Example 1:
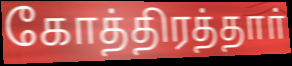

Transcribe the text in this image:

கோத்திரத்தார்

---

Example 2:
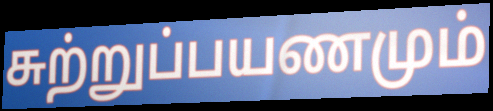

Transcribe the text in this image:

சுற்றுப்பயணமும்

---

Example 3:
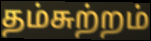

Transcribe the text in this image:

தம்சுற்றம்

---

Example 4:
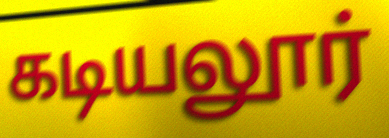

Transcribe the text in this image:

கடியலூர்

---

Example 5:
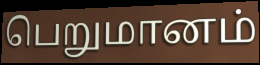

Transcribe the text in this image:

பெறுமானம்